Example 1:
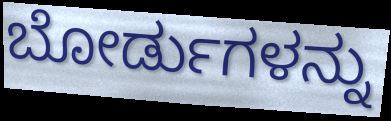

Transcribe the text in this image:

ಬೋರ್ಡುಗಳನ್ನು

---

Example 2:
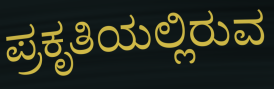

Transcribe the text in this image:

ಪ್ರಕೃತಿಯಲ್ಲಿರುವ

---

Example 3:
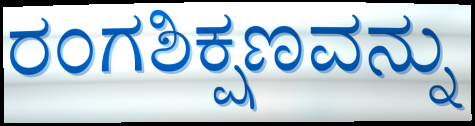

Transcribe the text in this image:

ರಂಗಶಿಕ್ಷಣವನ್ನು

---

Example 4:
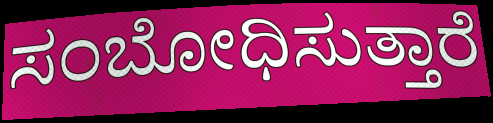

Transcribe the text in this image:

ಸಂಬೋಧಿಸುತ್ತಾರೆ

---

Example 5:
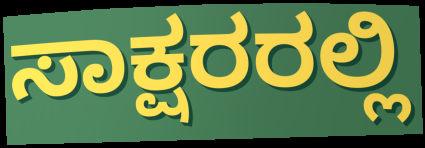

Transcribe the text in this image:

ಸಾಕ್ಷರರಲ್ಲಿ